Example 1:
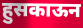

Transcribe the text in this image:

हुसकाऊन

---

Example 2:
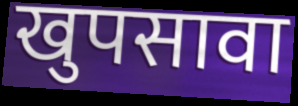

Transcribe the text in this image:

खुपसावा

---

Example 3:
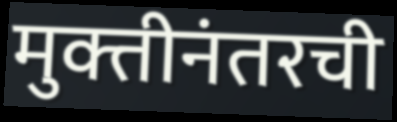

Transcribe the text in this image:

मुक्तीनंतरची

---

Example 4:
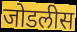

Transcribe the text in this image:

जोडलीस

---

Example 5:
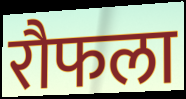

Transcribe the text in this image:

रौफला